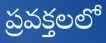
ప్రవక్తలలో